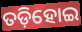
ତଡ଼ିହୋଇ